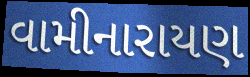
વામીનારાયણ